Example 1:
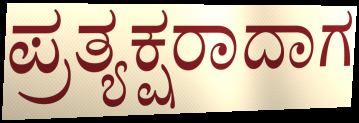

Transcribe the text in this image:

ಪ್ರತ್ಯಕ್ಷರಾದಾಗ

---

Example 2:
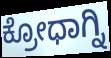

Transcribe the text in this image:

ಕ್ರೋಧಾಗ್ನಿ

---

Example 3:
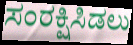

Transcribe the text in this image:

ಸಂರಕ್ಷಿಸಿಡಲು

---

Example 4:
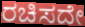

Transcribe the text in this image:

ರಚಿಸದೇ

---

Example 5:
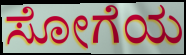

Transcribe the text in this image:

ಸೋಗೆಯ